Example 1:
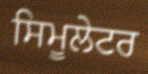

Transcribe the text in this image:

ਸਿਮੂਲੇਟਰ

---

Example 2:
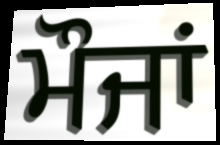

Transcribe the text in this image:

ਮੌਜਾਂ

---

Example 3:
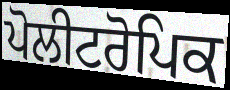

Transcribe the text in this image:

ਪੋਲੀਟਰੋਪਿਕ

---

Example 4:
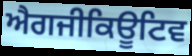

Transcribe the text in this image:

ਐਗਜੀਕਿਊਟਿਵ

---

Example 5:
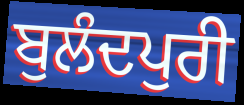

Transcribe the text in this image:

ਬੁਲੰਦਪੁਰੀ